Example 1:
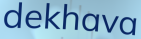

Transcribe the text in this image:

dekhava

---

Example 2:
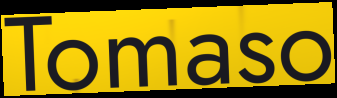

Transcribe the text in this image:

Tomaso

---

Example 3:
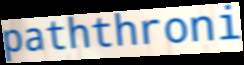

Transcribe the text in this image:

paththroni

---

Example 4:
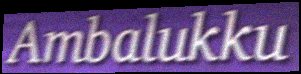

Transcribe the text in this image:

Ambalukku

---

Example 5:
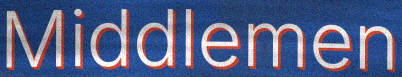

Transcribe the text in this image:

Middlemen